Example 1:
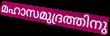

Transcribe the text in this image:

മഹാസമുദ്രത്തിനു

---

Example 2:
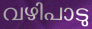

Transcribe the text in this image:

വഴിപാടു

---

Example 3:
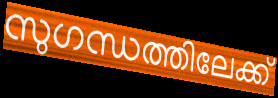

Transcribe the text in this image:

സുഗന്ധത്തിലേക്ക്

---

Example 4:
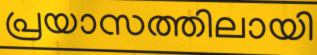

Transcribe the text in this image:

പ്രയാസത്തിലായി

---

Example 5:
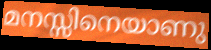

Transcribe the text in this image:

മനസ്സിനെയാണു